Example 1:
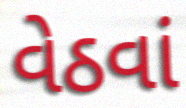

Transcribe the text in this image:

વેઠવાં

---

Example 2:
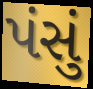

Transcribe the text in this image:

પંસું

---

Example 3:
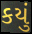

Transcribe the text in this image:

કયું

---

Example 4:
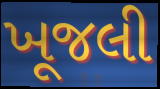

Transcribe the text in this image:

ખૂજલી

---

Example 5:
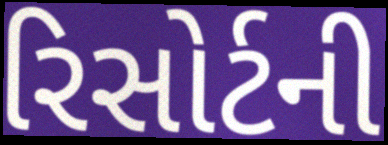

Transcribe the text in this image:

રિસોર્ટની